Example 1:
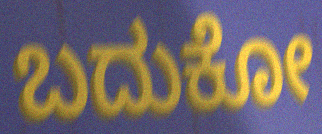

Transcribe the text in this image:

ಬದುಕೋ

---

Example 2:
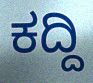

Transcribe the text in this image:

ಕದ್ದಿ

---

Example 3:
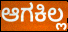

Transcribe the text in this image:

ಆಗಕಿಲ್ಲ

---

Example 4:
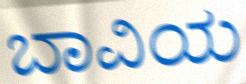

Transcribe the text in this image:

ಬಾವಿಯ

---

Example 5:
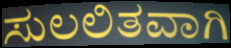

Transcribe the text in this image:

ಸುಲಲಿತವಾಗಿ